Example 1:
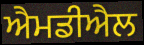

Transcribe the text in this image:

ਐਮਡੀਐਲ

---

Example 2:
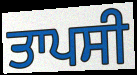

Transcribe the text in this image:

ਤਾਪਸੀ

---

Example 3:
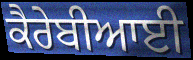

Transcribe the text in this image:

ਕੈਰੇਬੀਆਈ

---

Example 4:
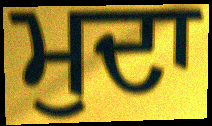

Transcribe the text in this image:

ਮੁਦਾ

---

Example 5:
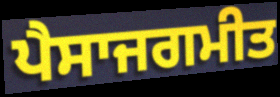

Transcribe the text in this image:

ਪੈਸਾਜਗਮੀਤ